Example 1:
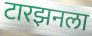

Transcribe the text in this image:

टारझनला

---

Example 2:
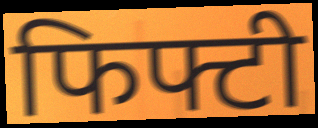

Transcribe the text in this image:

फिफ्टी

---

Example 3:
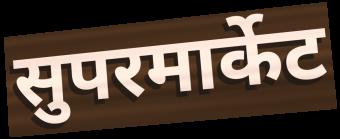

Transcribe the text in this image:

सुपरमार्केट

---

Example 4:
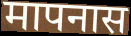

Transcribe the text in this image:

मापनास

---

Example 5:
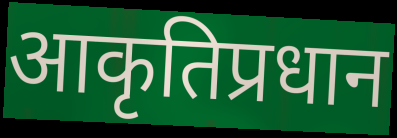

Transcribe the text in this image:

आकृतिप्रधान